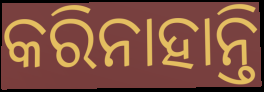
କରିନାହାନ୍ତି